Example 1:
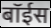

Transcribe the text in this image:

बॉईस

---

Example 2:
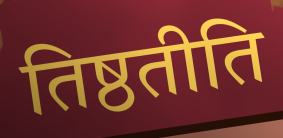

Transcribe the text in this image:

तिष्ठतीति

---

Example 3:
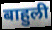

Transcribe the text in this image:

बाहुली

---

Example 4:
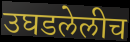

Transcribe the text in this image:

उघडलेलीच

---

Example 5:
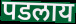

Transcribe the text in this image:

पडलाय